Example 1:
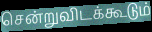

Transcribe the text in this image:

சென்றுவிடக்கூடும்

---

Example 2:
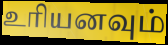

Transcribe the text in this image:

உரியனவும்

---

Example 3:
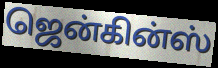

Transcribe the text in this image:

ஜென்கின்ஸ்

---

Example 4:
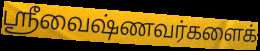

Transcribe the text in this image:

ஸ்ரீவைஷ்ணவர்களைக்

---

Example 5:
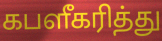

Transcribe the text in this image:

கபளீகரித்து